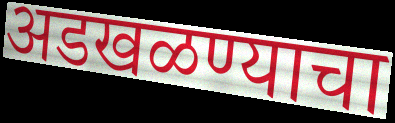
अडखळण्याचा